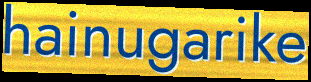
hainugarike